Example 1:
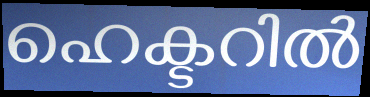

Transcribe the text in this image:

ഹെക്ടറിൽ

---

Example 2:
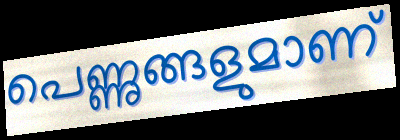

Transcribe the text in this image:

പെണ്ണുങ്ങളുമാണ്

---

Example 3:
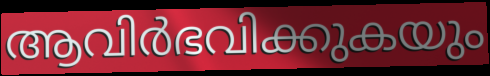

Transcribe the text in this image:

ആവിർഭവിക്കുകയും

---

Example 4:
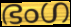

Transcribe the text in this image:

ഭംഗ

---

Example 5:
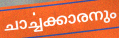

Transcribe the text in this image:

ചാൎച്ചക്കാരനും